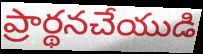
ప్రార్థనచేయుడి